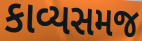
કાવ્યસમજ